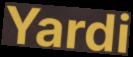
Yardi